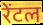
रेंटल